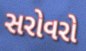
સરોવરો